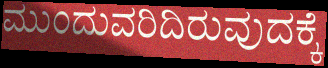
ಮುಂದುವರಿದಿರುವುದಕ್ಕೆ